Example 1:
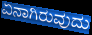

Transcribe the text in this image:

ಏನಾಗಿರುವುದು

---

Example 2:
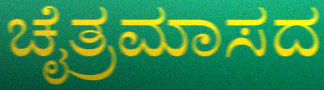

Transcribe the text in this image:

ಚೈತ್ರಮಾಸದ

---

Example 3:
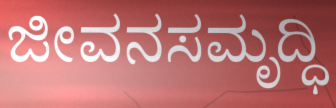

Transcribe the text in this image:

ಜೀವನಸಮೃದ್ಧಿ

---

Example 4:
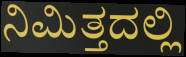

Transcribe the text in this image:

ನಿಮಿತ್ತದಲ್ಲಿ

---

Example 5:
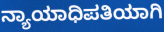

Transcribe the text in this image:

ನ್ಯಾಯಾಧಿಪತಿಯಾಗಿ